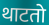
थाटतो